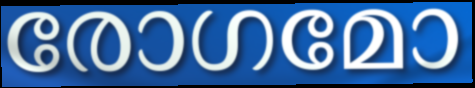
രോഗമോ